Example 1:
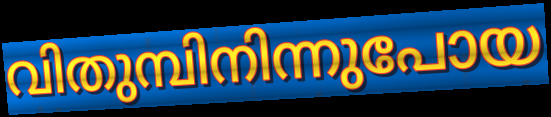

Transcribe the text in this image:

വിതുമ്പിനിന്നുപോയ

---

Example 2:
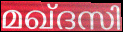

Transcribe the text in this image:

മഖ്ദസി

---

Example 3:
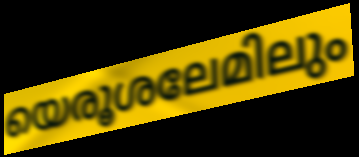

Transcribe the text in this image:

യെരൂശലേമിലും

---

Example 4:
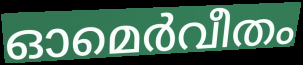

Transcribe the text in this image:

ഓമെർവീതം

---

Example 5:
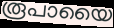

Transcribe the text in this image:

രൂപായൈ